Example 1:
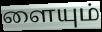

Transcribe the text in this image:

ளையும்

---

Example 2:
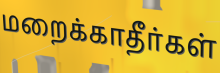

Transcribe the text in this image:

மறைக்காதீர்கள்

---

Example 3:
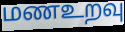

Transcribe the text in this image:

மணஉறவு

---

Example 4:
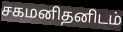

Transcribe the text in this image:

சகமனிதனிடம்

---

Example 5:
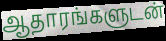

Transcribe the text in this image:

ஆதாரங்களுடன்